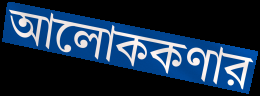
আলোককণার